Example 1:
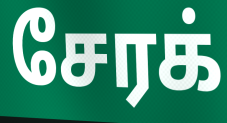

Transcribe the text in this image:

சேரக்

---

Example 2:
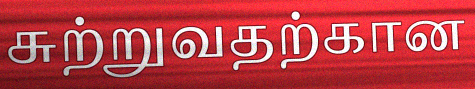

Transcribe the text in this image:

சுற்றுவதற்கான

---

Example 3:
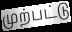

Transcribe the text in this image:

முற்பட்டு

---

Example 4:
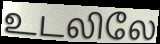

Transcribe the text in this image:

உடலிலே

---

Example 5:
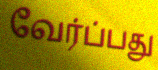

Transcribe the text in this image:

வேர்ப்பது